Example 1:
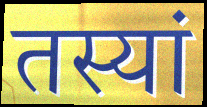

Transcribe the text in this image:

तस्यां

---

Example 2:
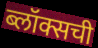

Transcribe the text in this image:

ब्लॉक्सची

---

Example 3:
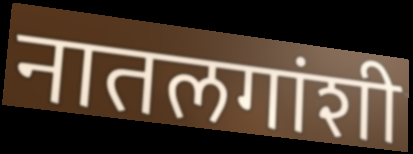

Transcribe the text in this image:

नातलगांशी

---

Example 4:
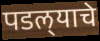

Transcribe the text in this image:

पडल्याचे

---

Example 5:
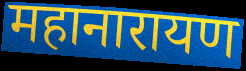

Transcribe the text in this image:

महानारायण